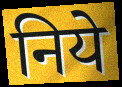
निये